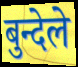
बुन्देले